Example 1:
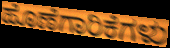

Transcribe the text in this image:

ಹೊಣೆಗಾರಿಕೆಗಳು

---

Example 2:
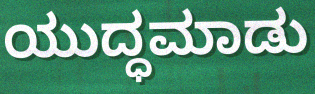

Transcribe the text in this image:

ಯುದ್ಧಮಾಡು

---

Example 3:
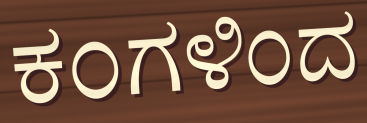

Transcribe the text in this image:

ಕಂಗಳಿಂದ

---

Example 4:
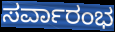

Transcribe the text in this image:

ಸರ್ವಾರಂಭ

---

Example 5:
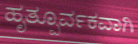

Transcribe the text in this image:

ಹೃತ್ಪೂರ್ವಕವಾಗಿ